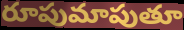
రూపుమాపుతూ